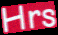
Hrs